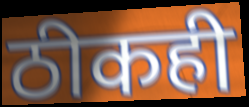
ठीकही